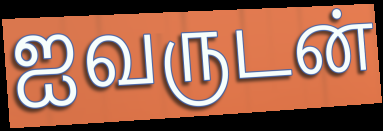
ஐவருடன்